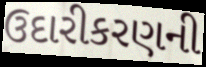
ઉદારીકરણની